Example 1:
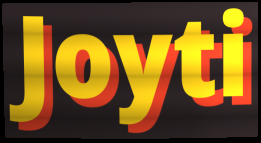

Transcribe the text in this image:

Joyti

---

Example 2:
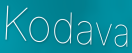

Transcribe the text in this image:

Kodava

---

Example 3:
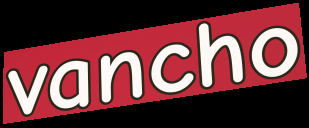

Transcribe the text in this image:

vancho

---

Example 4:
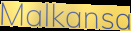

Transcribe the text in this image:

Malkansa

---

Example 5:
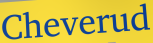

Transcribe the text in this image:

Cheverud